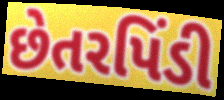
છેતરપિંડી